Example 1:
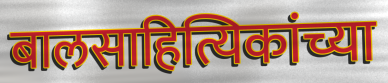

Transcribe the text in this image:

बालसाहित्यिकांच्या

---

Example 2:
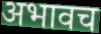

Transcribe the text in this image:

अभावच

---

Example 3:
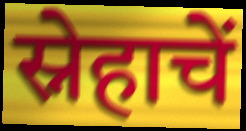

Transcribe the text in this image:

स्नेहाचें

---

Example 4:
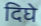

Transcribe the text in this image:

दिघे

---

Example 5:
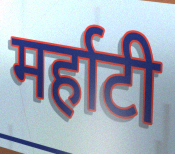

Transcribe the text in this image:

मर्हाटी